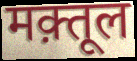
मक़्तूल